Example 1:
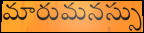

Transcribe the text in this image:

మారుమనస్సు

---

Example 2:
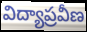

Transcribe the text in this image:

విద్యాప్రవీణ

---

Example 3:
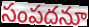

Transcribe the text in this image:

సంపదనూ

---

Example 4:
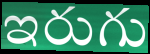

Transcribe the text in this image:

ఇరుగు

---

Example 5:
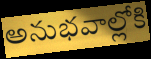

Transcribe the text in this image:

అనుభవాల్లోకి